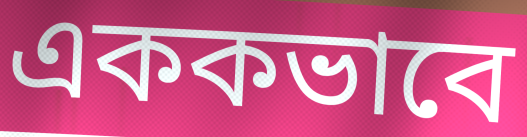
এককভাবে